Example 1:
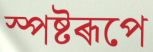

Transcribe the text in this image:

স্পষ্টৰূপে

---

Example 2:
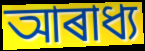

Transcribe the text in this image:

আৰাধ্য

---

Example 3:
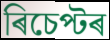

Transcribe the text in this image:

ৰিচেপ্টৰ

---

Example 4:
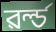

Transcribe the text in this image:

ৱৰ্ল্ড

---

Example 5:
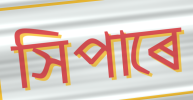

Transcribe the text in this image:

সিপাৰে